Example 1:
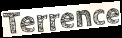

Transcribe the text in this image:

Terrence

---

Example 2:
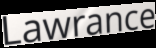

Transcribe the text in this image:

Lawrance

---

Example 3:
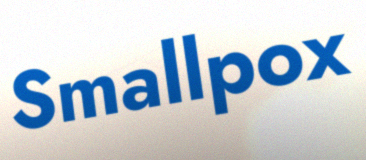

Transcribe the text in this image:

Smallpox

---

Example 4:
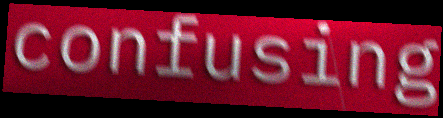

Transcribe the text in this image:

confusing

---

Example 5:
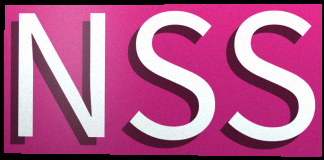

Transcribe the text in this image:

NSS